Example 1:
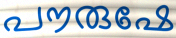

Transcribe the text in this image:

പൗരുഷേ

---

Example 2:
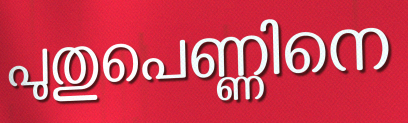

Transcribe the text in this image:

പുതുപെണ്ണിനെ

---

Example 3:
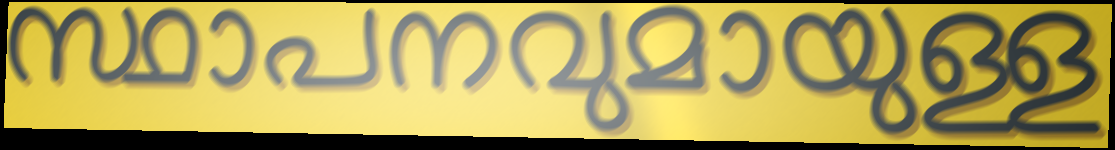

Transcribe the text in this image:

സ്ഥാപനവുമായുള്ള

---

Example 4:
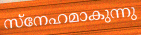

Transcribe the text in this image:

സ്നേഹമാകുന്നു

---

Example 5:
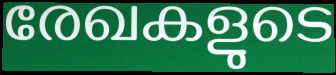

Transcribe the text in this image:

രേഖകളുടെ